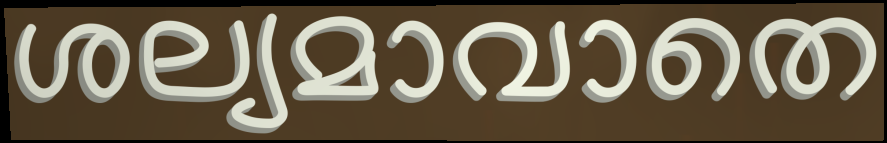
ശല്യമാവാതെ